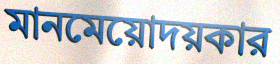
মানমেয়োদয়কার